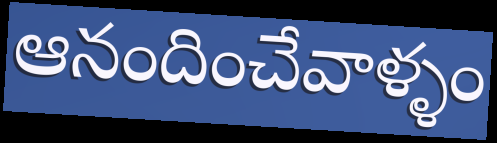
ఆనందించేవాళ్ళం